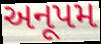
અનૂપમ